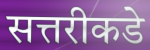
सत्तरीकडे